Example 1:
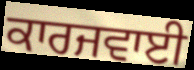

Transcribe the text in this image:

ਕਾਰਜਵਾਈ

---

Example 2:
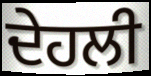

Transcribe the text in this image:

ਦੇਹਲੀ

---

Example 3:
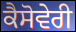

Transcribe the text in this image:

ਕੈਸੋਵੇਰੀ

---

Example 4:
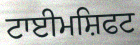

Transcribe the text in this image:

ਟਾਈਮਸ਼ਿਫਟ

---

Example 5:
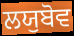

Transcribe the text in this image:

ਲਯੁਬੋਵ